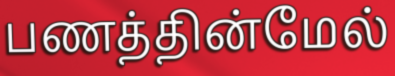
பணத்தின்மேல்